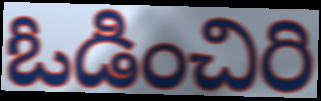
ఓడించిరి